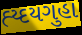
હ્ય્દયગુહા